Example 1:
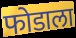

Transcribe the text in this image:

फोडाला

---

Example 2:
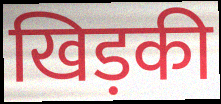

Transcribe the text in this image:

खिड़की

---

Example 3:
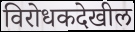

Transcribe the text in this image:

विरोधकदेखील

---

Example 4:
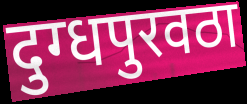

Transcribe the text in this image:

दुग्धपुरवठा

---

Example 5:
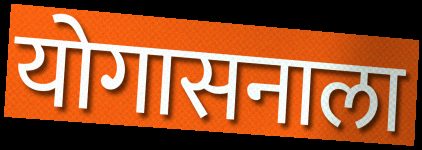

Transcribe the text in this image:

योगासनाला